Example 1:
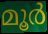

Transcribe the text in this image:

മൂർ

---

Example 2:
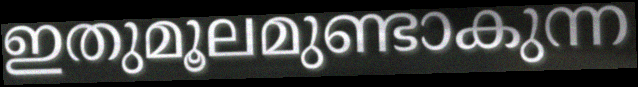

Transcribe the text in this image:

ഇതുമൂലമുണ്ടാകുന്ന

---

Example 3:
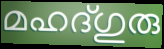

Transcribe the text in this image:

മഹദ്ഗുരു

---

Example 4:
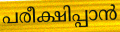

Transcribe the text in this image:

പരീക്ഷിപ്പാൻ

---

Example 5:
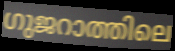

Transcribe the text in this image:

ഗുജറാത്തിലെ